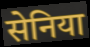
सेनिया